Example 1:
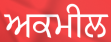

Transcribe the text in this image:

ਅਕਮੀਲ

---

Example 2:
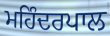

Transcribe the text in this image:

ਮਹਿੰਦਰਪਾਲ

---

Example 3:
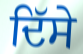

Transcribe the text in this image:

ਦਿੱਸੇ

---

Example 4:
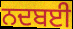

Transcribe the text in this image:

ਨਦਬਈ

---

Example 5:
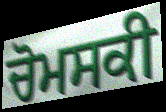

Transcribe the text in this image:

ਚੋਮਸਕੀ